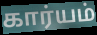
கார்யம்